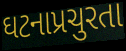
ઘટનાપ્રચુરતા